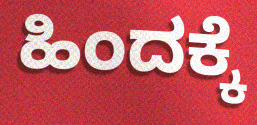
ಹಿಂದಕ್ಕೆ